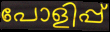
പോളിപ്പ്